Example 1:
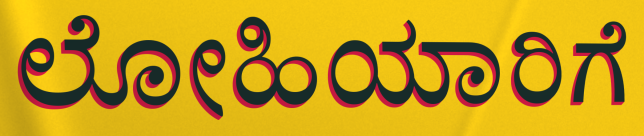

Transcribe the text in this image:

ಲೋಹಿಯಾರಿಗೆ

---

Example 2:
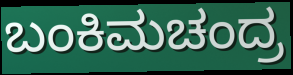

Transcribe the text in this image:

ಬಂಕಿಮಚಂದ್ರ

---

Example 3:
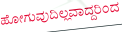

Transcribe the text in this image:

ಹೋಗುವುದಿಲ್ಲವಾದ್ದರಿಂದ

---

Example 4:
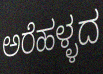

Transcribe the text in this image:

ಅರೆಹಳ್ಳದ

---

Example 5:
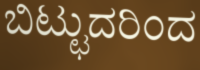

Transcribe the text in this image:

ಬಿಟ್ಟುದರಿಂದ